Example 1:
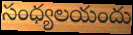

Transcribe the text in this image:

సంధ్యలయందు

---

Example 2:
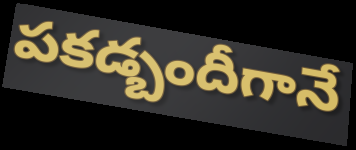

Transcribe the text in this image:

పకడ్బందీగానే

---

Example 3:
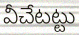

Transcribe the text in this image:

వీచేటట్టు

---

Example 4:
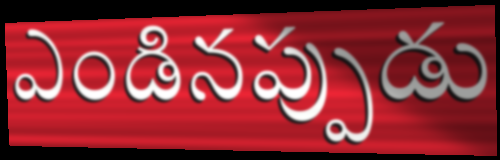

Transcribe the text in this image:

ఎండినప్పుడు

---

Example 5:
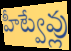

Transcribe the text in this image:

హీట్వేవ్లు